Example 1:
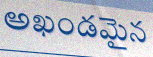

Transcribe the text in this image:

అఖండమైన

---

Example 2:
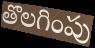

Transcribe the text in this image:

తొలగింపు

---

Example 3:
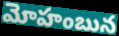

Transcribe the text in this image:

మోహంబున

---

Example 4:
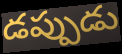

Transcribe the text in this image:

డప్పుడు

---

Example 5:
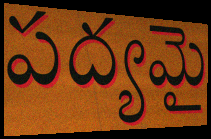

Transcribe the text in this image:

పద్యమై